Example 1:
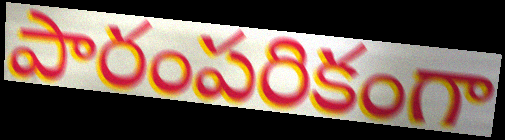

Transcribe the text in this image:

పారంపరికంగా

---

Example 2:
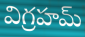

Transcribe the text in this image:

విగ్రహమ్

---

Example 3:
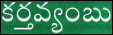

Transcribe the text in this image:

కర్తవ్యంబు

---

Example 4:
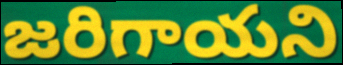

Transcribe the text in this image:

జరిగాయని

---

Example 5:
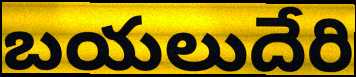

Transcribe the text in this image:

బయలుదేరి